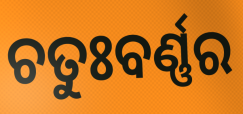
ଚତୁଃବର୍ଣ୍ଣର